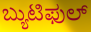
ಬ್ಯುಟಿಫುಲ್